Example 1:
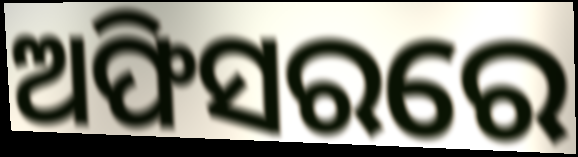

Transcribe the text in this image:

ଅଫିସରରେ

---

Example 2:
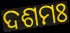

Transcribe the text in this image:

ଦଶମଃ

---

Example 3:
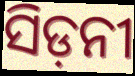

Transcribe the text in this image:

ସିଡ଼ନୀ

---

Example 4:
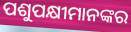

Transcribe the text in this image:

ପଶୁପକ୍ଷୀମାନଙ୍କର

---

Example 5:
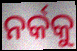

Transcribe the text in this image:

ନର୍କକୁ